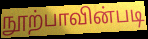
நூற்பாவின்படி